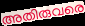
അതിരുവരെ